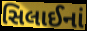
સિલાઈનાં